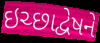
ઇચ્છાદ્વેષને